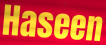
Haseen